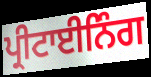
ਪ੍ਰੀਟਾਈਨਿੰਗ